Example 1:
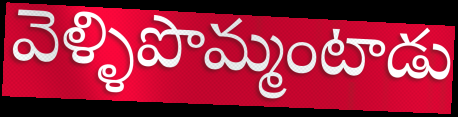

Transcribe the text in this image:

వెళ్ళిపొమ్మంటాడు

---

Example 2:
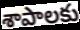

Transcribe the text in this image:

శాపాలకు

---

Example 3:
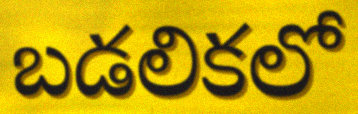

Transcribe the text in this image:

బడలికలో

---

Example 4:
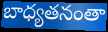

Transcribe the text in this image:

బాధ్యతనంతా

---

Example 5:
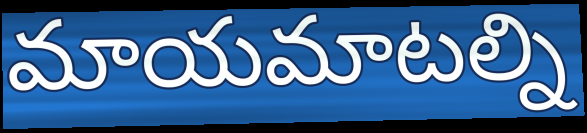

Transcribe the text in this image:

మాయమాటల్ని